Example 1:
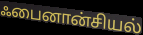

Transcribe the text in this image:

ஃபைனான்சியல்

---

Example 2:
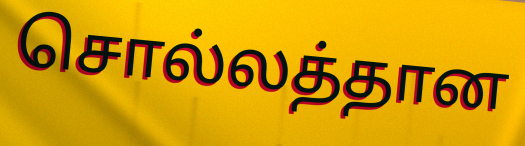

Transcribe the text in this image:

சொல்லத்தான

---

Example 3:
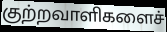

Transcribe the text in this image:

குற்றவாளிகளைச்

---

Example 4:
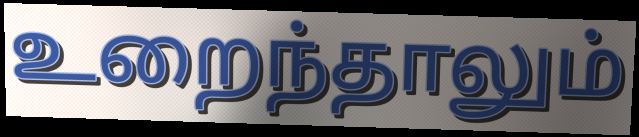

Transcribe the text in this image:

உறைந்தாலும்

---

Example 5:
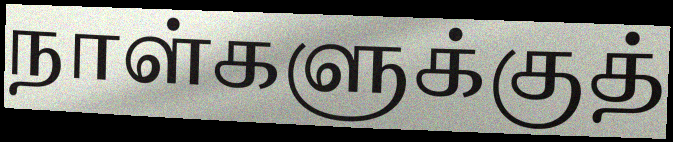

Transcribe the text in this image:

நாள்களுக்குத்